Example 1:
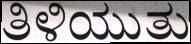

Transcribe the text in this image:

ತಿಳಿಯುತು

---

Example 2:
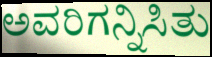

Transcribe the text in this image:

ಅವರಿಗನ್ನಿಸಿತು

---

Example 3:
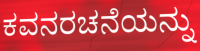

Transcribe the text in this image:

ಕವನರಚನೆಯನ್ನು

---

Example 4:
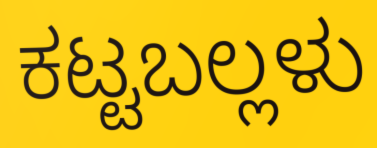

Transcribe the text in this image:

ಕಟ್ಟಬಲ್ಲಳು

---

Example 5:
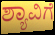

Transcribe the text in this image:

ಶ್ಯಾವಿಗೆ